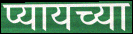
प्यायच्या